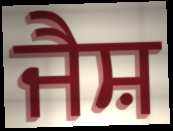
ਜੈਸ਼